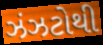
ઝંઝટોથી